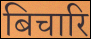
बिचारि